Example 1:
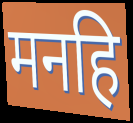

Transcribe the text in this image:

मनहि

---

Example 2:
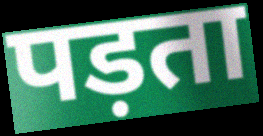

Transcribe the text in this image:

पड़ता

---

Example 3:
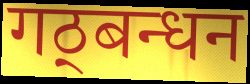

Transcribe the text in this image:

गठ्बन्धन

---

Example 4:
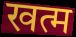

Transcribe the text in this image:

खत्म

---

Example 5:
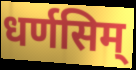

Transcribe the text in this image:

धर्णसिम्